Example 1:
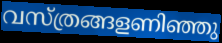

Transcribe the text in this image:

വസ്ത്രങ്ങളണിഞ്ഞു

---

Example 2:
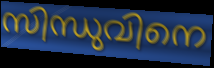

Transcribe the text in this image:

സിന്ധുവിനെ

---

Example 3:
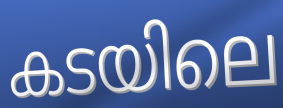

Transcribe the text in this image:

കടയിലെ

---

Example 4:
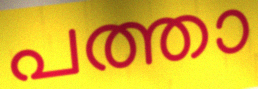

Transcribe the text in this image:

പത്താ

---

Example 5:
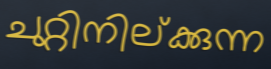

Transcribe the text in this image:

ചുറ്റിനില്ക്കുന്ന